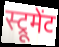
स्ट्रूमेंट